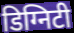
डिग्निटी